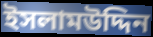
ইসলামউদ্দিন